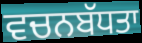
ਵਚਨਬੱਧਤਾ